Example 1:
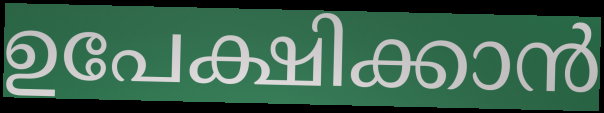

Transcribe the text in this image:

ഉപേക്ഷിക്കാൻ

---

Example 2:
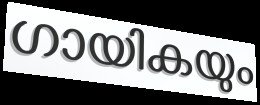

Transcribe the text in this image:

ഗായികയും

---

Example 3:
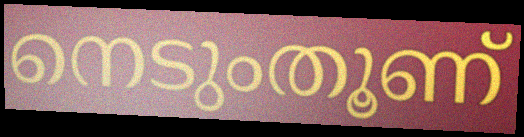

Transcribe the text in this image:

നെടുംതൂണ്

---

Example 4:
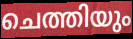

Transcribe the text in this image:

ചെത്തിയും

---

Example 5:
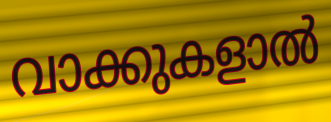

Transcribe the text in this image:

വാക്കുകളാൽ